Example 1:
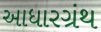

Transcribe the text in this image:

આધારગ્રંથ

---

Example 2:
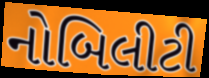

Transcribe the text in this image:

નોબિલીટી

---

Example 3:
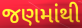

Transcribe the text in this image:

જણમાંથી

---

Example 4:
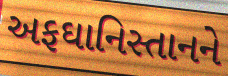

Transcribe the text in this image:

અફઘાનિસ્તાનને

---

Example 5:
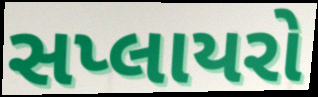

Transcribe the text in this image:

સપ્લાયરો